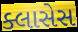
ક્લાસેસ